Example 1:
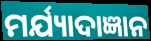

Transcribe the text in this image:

ମର୍ଯ୍ୟାଦାଜ୍ଞାନ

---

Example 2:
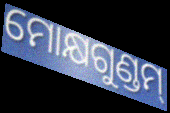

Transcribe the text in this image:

ମୋକ୍ଷଗୁଣ୍ଡମ୍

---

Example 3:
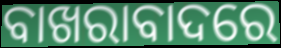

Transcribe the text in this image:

ବାଖରାବାଦରେ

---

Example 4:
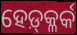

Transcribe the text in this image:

ହେଡ଼୍‍କ୍ଳର୍କ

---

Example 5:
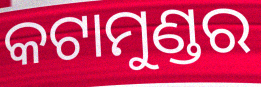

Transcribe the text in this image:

କଟାମୁଣ୍ଡର